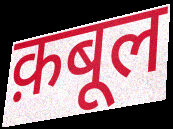
क़बूल